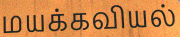
மயக்கவியல்